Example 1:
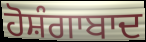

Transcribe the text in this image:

ਹੋਸ਼ੰਗਾਬਾਦ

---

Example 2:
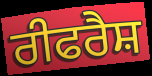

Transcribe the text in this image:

ਰੀਫਰੈਸ਼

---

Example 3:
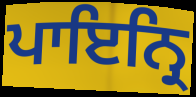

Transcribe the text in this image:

ਪਾਇਨ੍ਰਿ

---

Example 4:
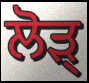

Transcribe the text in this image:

ਲੋੜ੍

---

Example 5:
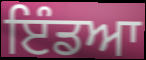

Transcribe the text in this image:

ਇੰਡਆ